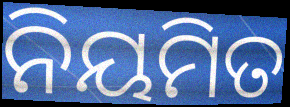
ନିୟମିତ